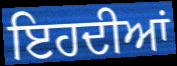
ਇਹਦੀਆਂ